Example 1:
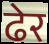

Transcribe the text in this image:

ढेर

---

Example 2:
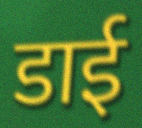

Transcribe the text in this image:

डाई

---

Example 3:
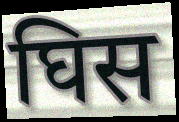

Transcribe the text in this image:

घिस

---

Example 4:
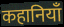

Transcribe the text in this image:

कहानियाँ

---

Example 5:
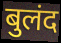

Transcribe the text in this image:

बुलंद